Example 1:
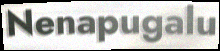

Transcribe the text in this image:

Nenapugalu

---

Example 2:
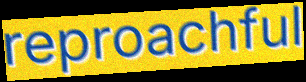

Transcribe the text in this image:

reproachful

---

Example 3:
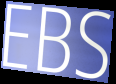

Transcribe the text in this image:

EBS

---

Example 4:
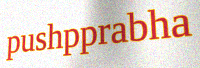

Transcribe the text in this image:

pushpprabha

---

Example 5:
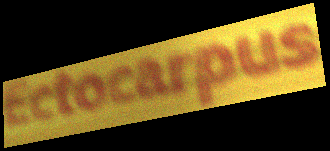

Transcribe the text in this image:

Ectocarpus